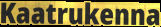
Kaatrukenna